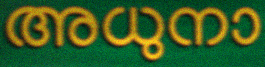
അധുനാ